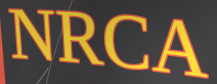
NRCA